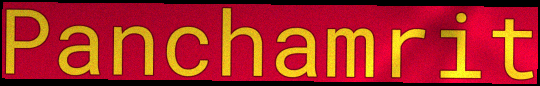
Panchamrit